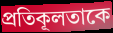
প্রতিকূলতাকে